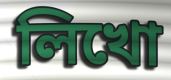
লিখো